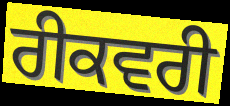
ਰੀਕਵਰੀ